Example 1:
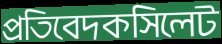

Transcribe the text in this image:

প্রতিবেদকসিলেট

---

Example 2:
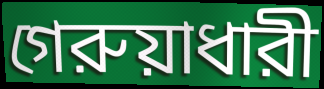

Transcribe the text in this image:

গেরুয়াধারী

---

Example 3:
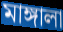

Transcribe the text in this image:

মাঙ্গালা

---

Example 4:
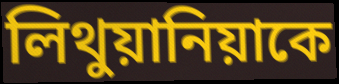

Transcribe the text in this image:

লিথুয়ানিয়াকে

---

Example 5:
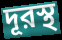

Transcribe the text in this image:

দূরস্থ